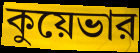
কুয়েভার